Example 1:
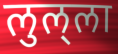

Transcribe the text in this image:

लुल्ला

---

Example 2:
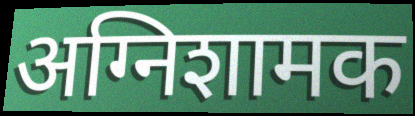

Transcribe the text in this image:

अग्निशामक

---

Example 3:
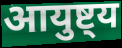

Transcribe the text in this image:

आयुष्ट्य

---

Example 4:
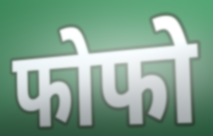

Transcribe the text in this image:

फोफो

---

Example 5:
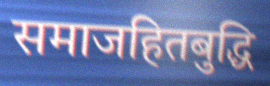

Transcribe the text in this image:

समाजहितबुद्धि